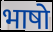
भाषो